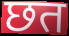
छत